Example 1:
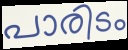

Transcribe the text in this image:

പാരിടം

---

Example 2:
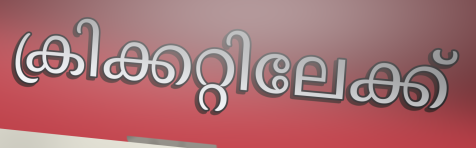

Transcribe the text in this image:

ക്രിക്കറ്റിലേക്ക്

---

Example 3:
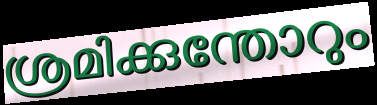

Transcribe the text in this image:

ശ്രമിക്കുന്തോറും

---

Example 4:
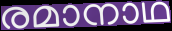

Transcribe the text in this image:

രമാനാഥ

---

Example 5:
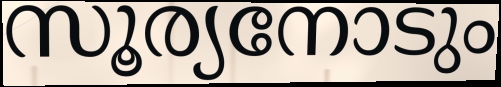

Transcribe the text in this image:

സൂര്യനോടും